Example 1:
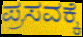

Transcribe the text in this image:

ಪ್ರಸವಕ್ಕೆ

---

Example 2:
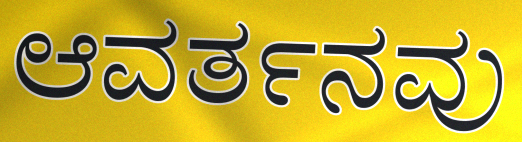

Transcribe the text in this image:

ಆವರ್ತನವು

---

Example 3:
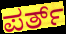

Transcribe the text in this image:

ಪರ್ತ್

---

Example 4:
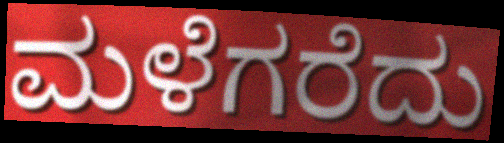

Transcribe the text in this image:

ಮಳೆಗರೆದು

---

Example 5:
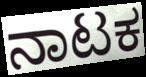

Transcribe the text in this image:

ನಾಟಕ